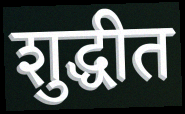
शुद्धीत